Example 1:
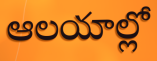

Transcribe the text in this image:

ఆలయాల్లో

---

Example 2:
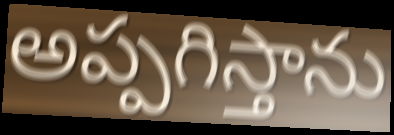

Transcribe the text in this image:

అప్పగిస్తాను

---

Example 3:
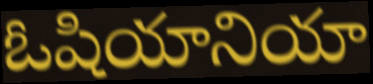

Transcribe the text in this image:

ఓషియానియా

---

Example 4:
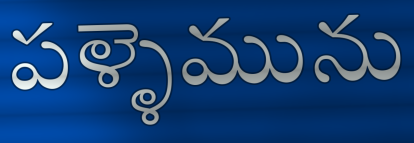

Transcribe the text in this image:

పళ్ళెమును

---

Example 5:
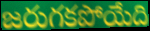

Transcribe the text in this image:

జరుగకపోయేది